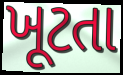
ખૂટતા